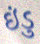
ઇંડુ